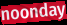
noonday